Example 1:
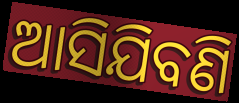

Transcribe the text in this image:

ଆସିଯିବଣି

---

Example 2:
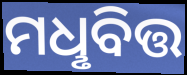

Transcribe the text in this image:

ମଧୢବିତ୍ତ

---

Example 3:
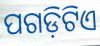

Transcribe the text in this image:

ପଗଡ଼ିଟିଏ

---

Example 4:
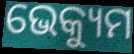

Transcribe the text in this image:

ଭେକ୍ୟୁମ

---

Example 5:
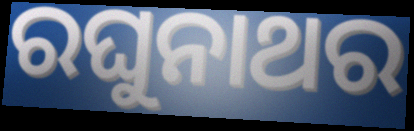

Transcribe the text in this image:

ରଘୁନାଥର